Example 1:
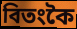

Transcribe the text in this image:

বিতংকৈ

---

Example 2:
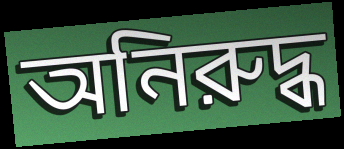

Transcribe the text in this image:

অনিৰুদ্ধ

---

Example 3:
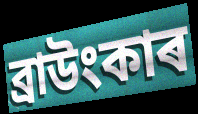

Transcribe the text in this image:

ব্ৰাউংকাৰ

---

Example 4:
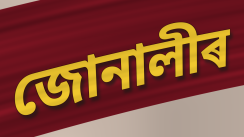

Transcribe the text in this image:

জোনালীৰ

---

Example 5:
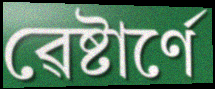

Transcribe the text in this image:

ৱেষ্টাৰ্ণে